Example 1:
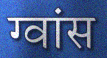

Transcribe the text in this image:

ग्वांस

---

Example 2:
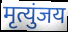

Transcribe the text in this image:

मृत्युंजय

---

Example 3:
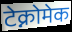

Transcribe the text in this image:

टेक्नोमेक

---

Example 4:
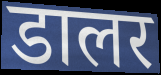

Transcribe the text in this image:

डालर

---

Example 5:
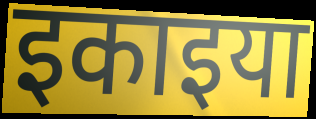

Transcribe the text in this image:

इकाइया